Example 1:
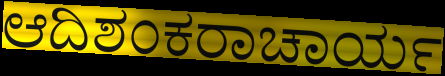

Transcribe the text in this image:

ಆದಿಶಂಕರಾಚಾರ್ಯ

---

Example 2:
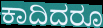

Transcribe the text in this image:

ಕಾದಿದರೂ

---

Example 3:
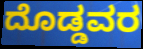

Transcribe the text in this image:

ದೊಡ್ಡವರ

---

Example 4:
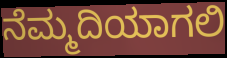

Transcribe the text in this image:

ನೆಮ್ಮದಿಯಾಗಲಿ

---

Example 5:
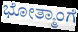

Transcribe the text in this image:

ಭೋತ್ಮಾಂಗೆ